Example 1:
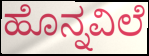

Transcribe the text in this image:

ಹೊನ್ನವಿಲೆ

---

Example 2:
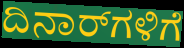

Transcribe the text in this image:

ದಿನಾರ್‌ಗಳಿಗೆ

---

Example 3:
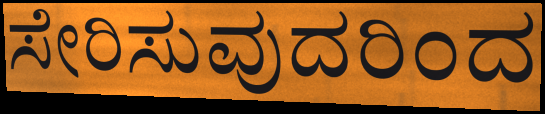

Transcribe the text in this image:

ಸೇರಿಸುವುದರಿಂದ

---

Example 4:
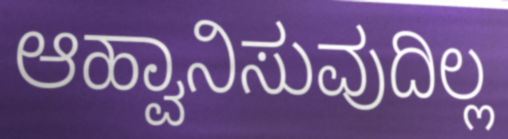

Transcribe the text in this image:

ಆಹ್ವಾನಿಸುವುದಿಲ್ಲ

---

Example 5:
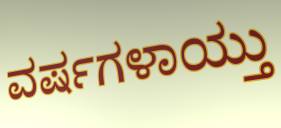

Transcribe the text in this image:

ವರ್ಷಗಳಾಯ್ತು